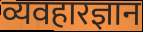
व्यवहारज्ञान